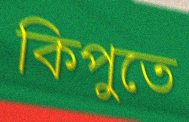
কিপুতে